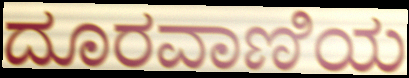
ದೂರವಾಣಿಯ